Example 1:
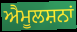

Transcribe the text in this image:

ਐਮੂਲਸ਼ਨਾਂ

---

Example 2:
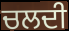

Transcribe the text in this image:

ਚਲਦੀ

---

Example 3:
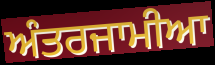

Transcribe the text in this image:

ਅੰਤਰਜਾਮੀਆ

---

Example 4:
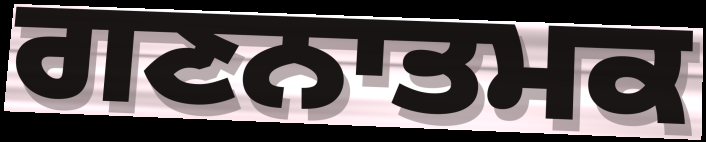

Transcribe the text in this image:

ਗਣਨਾਤਮਕ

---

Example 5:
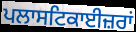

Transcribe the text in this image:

ਪਲਾਸਟਿਕਾਈਜ਼ਰਾਂ